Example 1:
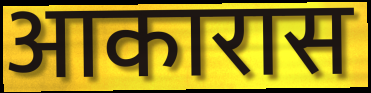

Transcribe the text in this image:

आकारास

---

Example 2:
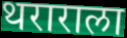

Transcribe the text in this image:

थराराला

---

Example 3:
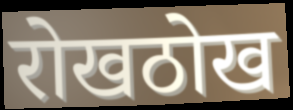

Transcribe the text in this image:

रोखठोख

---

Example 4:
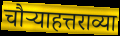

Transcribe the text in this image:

चौऱ्याहत्तराव्या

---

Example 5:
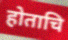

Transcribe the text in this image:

होताचि